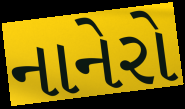
નાનેરો